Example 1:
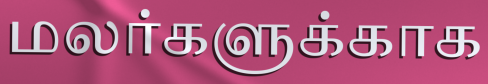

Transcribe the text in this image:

மலர்களுக்காக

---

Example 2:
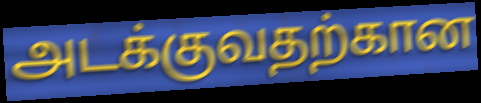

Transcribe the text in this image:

அடக்குவதற்கான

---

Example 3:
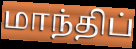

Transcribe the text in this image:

மாந்திப்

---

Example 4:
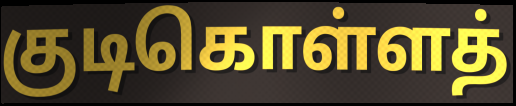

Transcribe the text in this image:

குடிகொள்ளத்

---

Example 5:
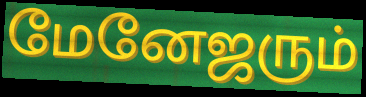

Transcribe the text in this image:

மேனேஜரும்